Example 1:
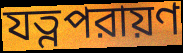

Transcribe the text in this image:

যত্নপরায়ণ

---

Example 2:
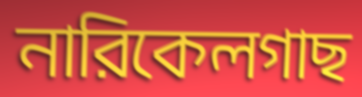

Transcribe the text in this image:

নারিকেলগাছ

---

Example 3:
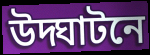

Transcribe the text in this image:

উদ্ঘাটনে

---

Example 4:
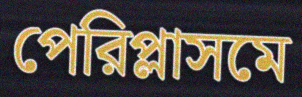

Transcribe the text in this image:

পেরিপ্লাসমে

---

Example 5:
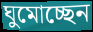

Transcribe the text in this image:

ঘুমোচ্ছেন